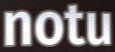
notu